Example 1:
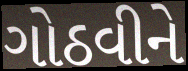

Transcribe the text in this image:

ગોઠવીને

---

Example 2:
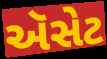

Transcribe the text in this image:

ઍસેટ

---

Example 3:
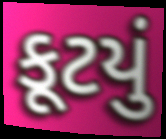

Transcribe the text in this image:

કૂટયું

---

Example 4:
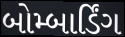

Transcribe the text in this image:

બોમ્બાર્ડિંગ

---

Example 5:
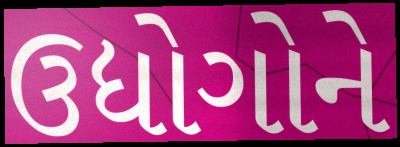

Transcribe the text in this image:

ઉદ્યોગોને